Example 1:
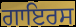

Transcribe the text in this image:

ਗਾਇਰਸ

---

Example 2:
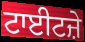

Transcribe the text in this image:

ਟਾਈਟਜ਼ੇ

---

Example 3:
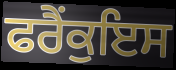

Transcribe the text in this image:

ਫਰੈਂਕੁਇਸ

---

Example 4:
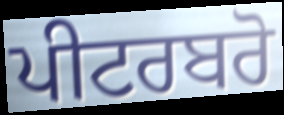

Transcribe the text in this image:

ਪੀਟਰਬਰੋ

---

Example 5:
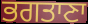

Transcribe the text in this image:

ਭਗਤਾਣਾ